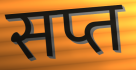
सप्त